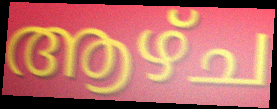
ആഴ്ച